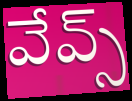
వేవ్స్